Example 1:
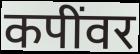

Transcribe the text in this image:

कपींवर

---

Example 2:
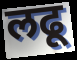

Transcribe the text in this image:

लढू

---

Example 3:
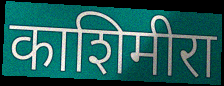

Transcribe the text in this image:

काशिमीरा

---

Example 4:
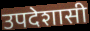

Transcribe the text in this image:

उपदेशासी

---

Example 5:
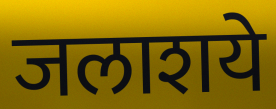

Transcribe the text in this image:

जलाशये